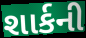
શાર્કની